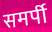
समर्पी